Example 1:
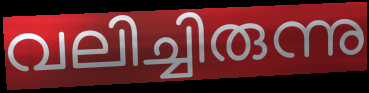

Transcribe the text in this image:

വലിച്ചിരുന്നു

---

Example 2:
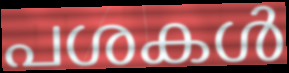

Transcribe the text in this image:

പശകൾ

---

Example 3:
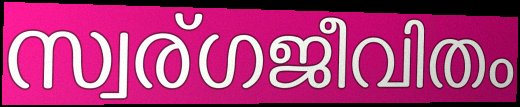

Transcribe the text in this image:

സ്വര്ഗജീവിതം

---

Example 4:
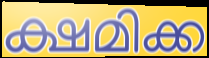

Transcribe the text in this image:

ക്ഷമിക്ക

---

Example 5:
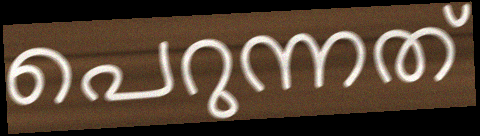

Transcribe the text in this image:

പെറുന്നത്